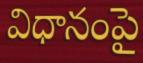
విధానంపై